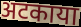
अटकाया